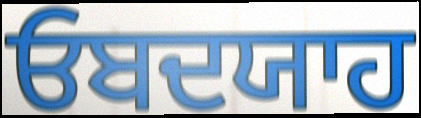
ਓਬਦਯਾਹ